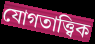
যোগতাত্ত্বিক